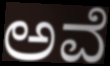
ಅವೆ